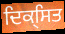
ਦਿਕ੍ਸਿਤ